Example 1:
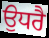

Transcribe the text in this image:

ਉਧਰੈ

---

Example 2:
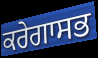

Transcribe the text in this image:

ਕਰੇਗਾਸਭ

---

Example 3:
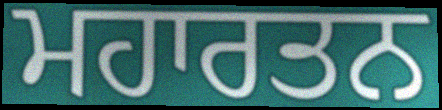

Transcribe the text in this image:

ਮਹਾਰਤਨ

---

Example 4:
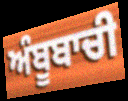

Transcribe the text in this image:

ਅੰਬੂਬਾਚੀ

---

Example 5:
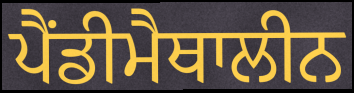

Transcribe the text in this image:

ਪੈਂਡੀਮੈਥਾਲੀਨ